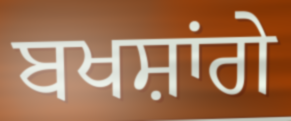
ਬਖਸ਼ਾਂਗੇ